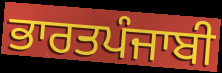
ਭਾਰਤਪੰਜਾਬੀ